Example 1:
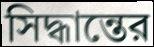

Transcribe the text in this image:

সিদ্ধান্তের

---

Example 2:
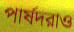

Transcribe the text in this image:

পার্ষদরাও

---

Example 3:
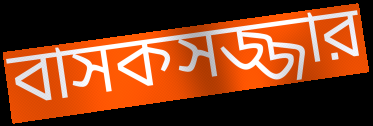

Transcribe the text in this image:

বাসকসজ্জার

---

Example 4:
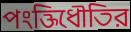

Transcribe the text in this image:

পংক্তিধৌতির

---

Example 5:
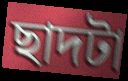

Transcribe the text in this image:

ছাদটা